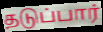
தடுப்பார்